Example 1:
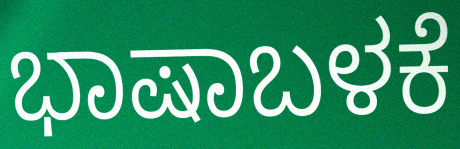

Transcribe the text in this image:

ಭಾಷಾಬಳಕೆ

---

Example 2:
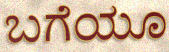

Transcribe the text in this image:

ಬಗೆಯೂ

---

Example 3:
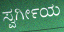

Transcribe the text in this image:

ಸ್ವರ್ಗೀಯ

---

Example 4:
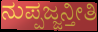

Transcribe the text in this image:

ನುಪ್ಪಜ್ಜನ್ತೀತಿ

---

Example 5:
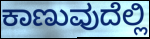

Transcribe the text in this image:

ಕಾಣುವುದೆಲ್ಲಿ